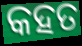
କହତ